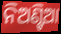
ନିଅଣ୍ଟିଆ